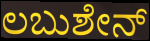
ಲಬುಶೇನ್